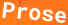
Prose